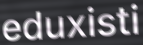
eduxisti